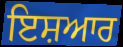
ਇਸ਼ਆਰ